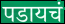
पडायचं